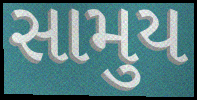
સામુય